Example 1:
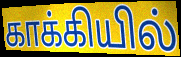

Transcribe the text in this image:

காக்கியில்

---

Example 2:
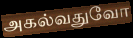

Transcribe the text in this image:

அகல்வதுவோ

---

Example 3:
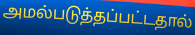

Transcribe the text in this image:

அமல்படுத்தப்பட்டதால்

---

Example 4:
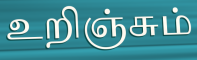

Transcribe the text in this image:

உறிஞ்சும்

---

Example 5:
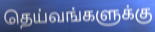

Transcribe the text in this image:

தெய்வங்களுக்கு